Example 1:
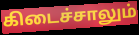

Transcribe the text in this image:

கிடைச்சாலும்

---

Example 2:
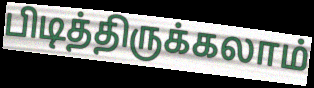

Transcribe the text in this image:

பிடித்திருக்கலாம்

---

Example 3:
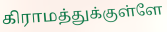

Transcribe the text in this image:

கிராமத்துக்குள்ளே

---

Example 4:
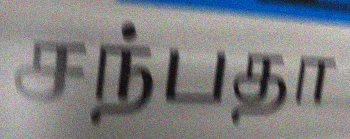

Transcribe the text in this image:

சந்பதா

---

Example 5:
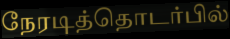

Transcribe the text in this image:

நேரடித்தொடர்பில்